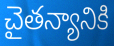
చైతన్యానికి